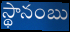
స్థానంబు